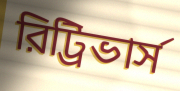
রিট্রিভার্স